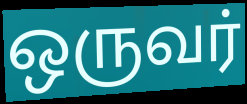
ஒருவர்